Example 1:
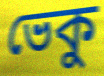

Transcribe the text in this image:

ভেকু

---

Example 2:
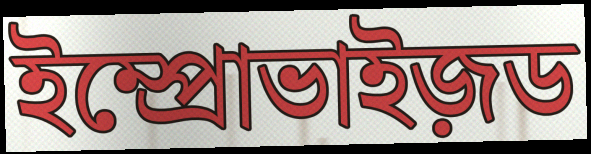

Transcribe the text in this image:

ইম্প্রোভাইজ়ড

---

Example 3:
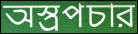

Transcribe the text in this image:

অস্ত্রপচার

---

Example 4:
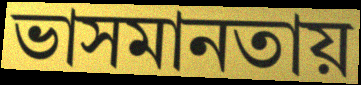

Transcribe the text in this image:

ভাসমানতায়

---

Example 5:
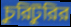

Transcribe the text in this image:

চুরিটুরির